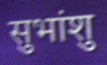
सुभांशु